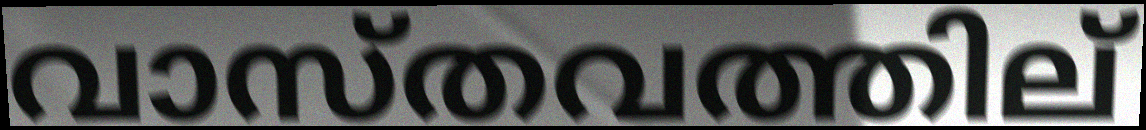
വാസ്തവത്തില്